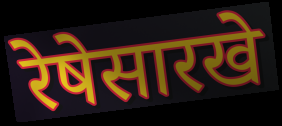
रेषेसारखे